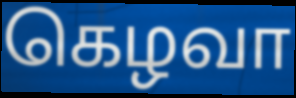
கெழவா